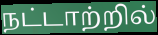
நட்டாற்றில்